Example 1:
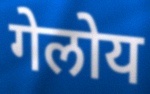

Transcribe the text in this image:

गेलोय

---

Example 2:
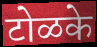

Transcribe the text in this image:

टोळके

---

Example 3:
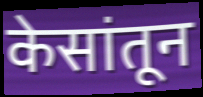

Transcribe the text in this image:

केसांतून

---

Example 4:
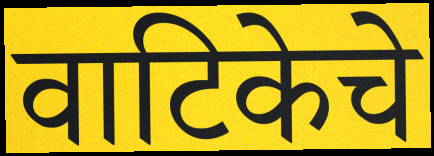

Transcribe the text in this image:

वाटिकेचे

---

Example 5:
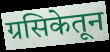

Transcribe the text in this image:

ग्रसिकेतून